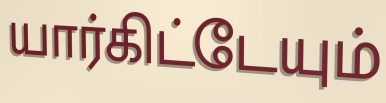
யார்கிட்டேயும்